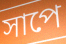
সাপে